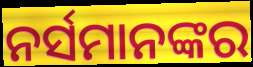
ନର୍ସମାନଙ୍କର